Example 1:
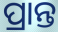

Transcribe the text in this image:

ପ୍ରାନ୍ତ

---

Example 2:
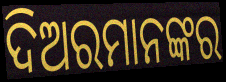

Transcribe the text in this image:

ଦିଅରମାନଙ୍କର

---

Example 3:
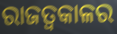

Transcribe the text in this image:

ରାଜତ୍ୱକାଳର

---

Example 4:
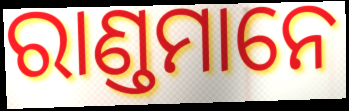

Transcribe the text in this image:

ରାଣ୍ଡମାନେ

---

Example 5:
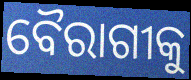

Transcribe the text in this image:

ବୈରାଗୀକୁ